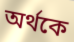
অর্থকে